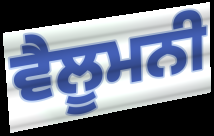
ਵੈਲੂਮਨੀ